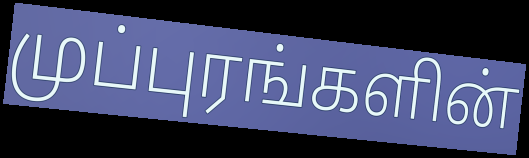
முப்புரங்களின்